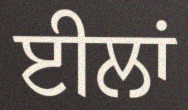
ਈਲਾਂ